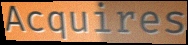
Acquires